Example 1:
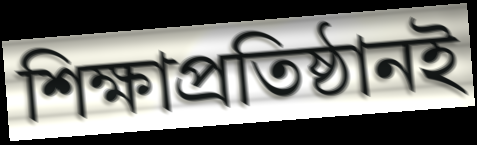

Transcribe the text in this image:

শিক্ষাপ্রতিষ্ঠানই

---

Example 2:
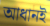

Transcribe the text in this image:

আধানই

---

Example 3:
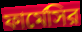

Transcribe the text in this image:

ফার্মেসির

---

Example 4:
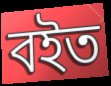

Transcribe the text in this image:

বইত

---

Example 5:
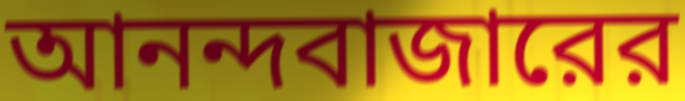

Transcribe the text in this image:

আনন্দবাজারের